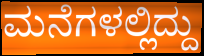
ಮನೆಗಳಲ್ಲಿದ್ದು